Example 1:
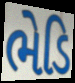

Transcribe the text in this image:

ભેડિ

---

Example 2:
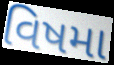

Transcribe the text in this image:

વિષમા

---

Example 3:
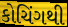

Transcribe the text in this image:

કોચિંગથી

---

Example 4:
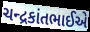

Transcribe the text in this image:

ચન્દ્રકાંતભાઈએ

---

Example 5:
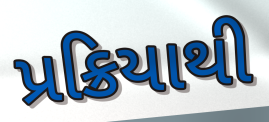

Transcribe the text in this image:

પ્રક્રિયાથી